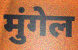
मुंगेल